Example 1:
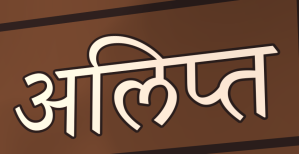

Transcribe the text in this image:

अलिप्त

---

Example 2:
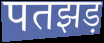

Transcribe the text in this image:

पतझड़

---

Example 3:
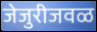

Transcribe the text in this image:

जेजुरीजवळ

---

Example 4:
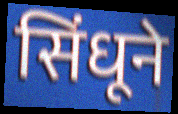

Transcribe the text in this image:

सिंधूने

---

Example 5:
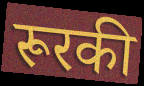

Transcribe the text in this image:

रूरकी